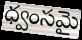
ధ్వంసమై